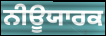
ਨੀਊਯਾਰਕ